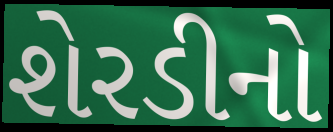
શેરડીનો